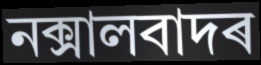
নক্সালবাদৰ